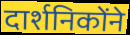
दार्शनिकोंने